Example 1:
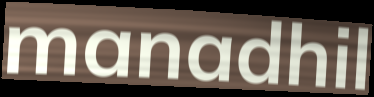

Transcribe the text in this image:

manadhil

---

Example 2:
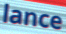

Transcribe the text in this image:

lance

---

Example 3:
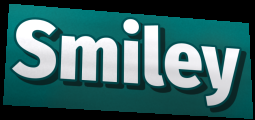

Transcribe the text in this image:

Smiley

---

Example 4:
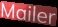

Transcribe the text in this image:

Mailer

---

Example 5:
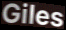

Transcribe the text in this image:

Giles